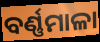
ବର୍ଣ୍ଣମାଳା